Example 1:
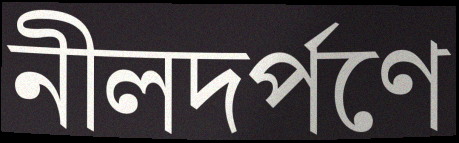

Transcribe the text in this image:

নীলদর্পণে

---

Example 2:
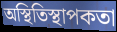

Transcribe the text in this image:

অস্থিতিস্থাপকতা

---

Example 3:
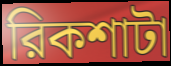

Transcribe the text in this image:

রিকশাটা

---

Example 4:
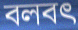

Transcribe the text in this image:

বলবৎ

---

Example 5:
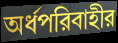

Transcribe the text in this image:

অর্ধপরিবাহীর